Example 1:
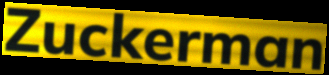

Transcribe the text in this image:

Zuckerman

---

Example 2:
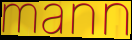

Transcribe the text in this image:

mann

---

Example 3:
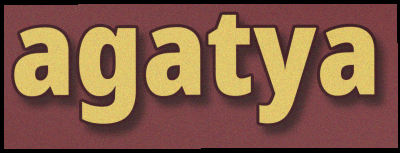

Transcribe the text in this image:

agatya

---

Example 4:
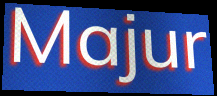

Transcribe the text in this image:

Majur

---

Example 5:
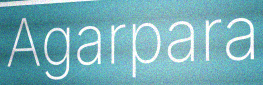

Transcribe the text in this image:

Agarpara